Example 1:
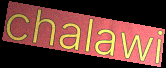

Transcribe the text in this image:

chalawi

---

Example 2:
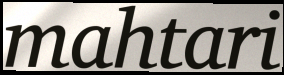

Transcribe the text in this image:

mahtari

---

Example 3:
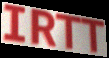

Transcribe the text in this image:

IRTT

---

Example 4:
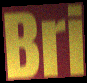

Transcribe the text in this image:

Bri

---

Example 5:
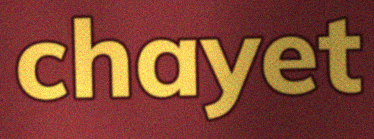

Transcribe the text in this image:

chayet